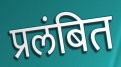
प्रलंबित